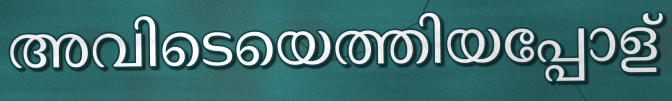
അവിടെയെത്തിയപ്പോള്